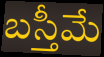
బస్తీమే